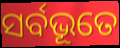
ସର୍ବଭୂତେ